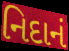
નિદાનં